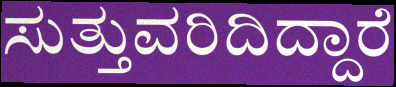
ಸುತ್ತುವರಿದಿದ್ದಾರೆ